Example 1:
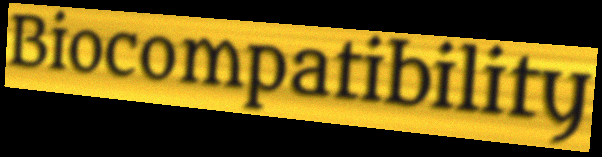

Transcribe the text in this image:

Biocompatibility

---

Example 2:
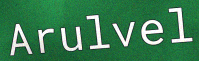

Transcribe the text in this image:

Arulvel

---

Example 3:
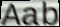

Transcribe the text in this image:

Aab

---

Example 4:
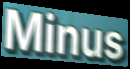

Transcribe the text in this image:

Minus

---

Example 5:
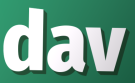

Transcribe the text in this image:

dav